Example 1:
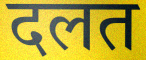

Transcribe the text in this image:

दलत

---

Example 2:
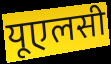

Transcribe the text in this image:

यूएलसी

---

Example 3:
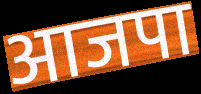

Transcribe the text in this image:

आजपा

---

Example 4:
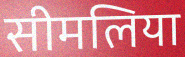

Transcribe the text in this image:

सीमलिया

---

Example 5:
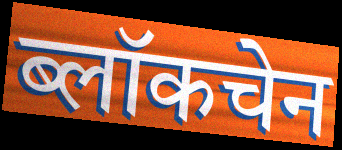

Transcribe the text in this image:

ब्लॉकचेन